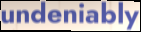
undeniably